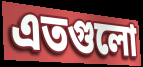
এতগুলো